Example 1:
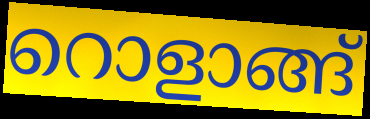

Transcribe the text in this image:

റൊളാങ്ങ്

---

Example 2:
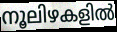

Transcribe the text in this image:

നൂലിഴകളിൽ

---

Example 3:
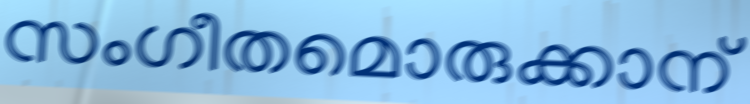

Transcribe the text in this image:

സംഗീതമൊരുക്കാന്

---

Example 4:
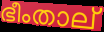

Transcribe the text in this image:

ഭീംതാല്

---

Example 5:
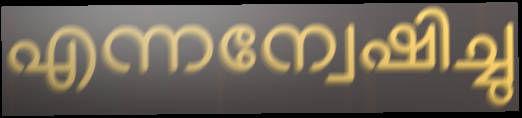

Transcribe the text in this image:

എന്നന്വേഷിച്ചു